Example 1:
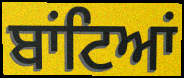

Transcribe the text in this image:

ਬਾਂਟਿਆਂ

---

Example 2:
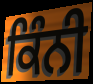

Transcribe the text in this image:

ਕਿੰਨੀ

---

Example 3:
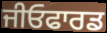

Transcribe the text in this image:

ਜੀਓਫਾਰਡ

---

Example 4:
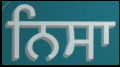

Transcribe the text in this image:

ਨਿਸਾ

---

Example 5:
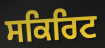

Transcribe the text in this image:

ਸਕਿਰਿਟ